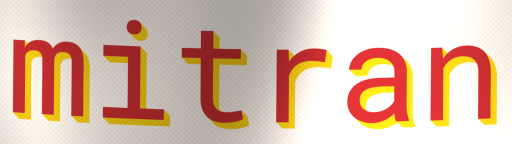
mitran